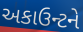
અકાઉન્ટને